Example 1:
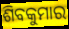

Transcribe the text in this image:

ଶିବକୁମାର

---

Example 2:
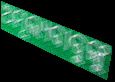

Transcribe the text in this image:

ଅମୂଲ୍ୟବାବୁଙ୍କୁ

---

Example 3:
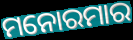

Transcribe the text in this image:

ମନୋରମାର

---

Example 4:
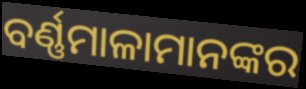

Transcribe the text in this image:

ବର୍ଣ୍ଣମାଳାମାନଙ୍କର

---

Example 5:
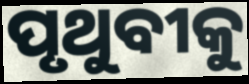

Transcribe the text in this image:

ପୃଥୁବୀକୁ